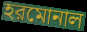
হরমোনাল